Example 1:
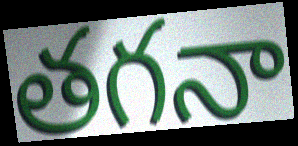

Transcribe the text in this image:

తగనా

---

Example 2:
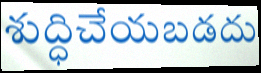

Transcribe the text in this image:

శుద్ధిచేయబడదు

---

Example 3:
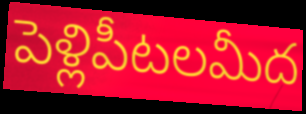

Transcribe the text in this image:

పెళ్లిపీటలమీద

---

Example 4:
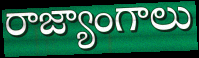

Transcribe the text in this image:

రాజ్యాంగాలు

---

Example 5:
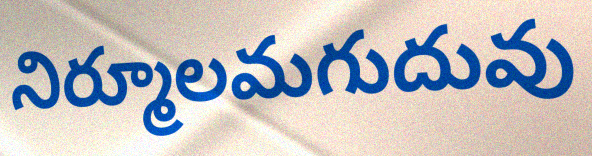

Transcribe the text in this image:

నిర్మూలమగుదువు